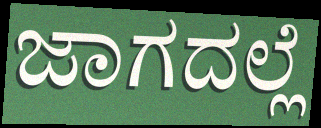
ಜಾಗದಲ್ಲೆ